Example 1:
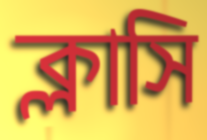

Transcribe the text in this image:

ক্লাসি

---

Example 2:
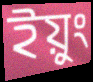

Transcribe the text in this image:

ইয়ুং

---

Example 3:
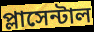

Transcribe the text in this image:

প্লাসেন্টাল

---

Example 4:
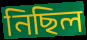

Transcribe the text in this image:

নিছিল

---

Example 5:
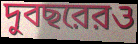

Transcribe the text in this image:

দুবছরেরও